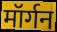
मॉर्गन